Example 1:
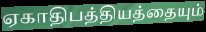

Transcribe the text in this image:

ஏகாதிபத்தியத்தையும்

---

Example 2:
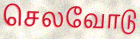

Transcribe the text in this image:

செலவோடு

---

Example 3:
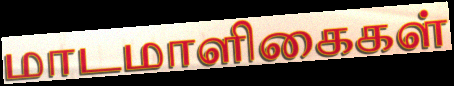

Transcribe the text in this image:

மாடமாளிகைகள்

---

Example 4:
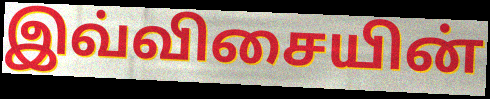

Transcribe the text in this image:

இவ்விசையின்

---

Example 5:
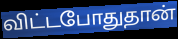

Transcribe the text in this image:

விட்டபோதுதான்